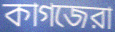
কাগজেরা